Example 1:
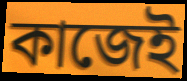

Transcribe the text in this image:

কাজেই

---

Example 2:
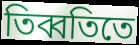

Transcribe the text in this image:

তিব্বতিতে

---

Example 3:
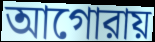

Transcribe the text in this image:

আগোরায়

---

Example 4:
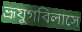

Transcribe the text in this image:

ভ্রূযুগবিলাসে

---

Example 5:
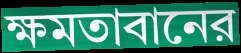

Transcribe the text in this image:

ক্ষমতাবানের